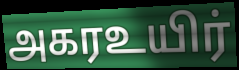
அகரஉயிர்